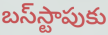
బస్‌స్టాపుకు